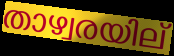
താഴ്വരയില്